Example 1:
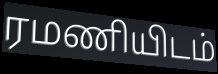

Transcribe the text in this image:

ரமணியிடம்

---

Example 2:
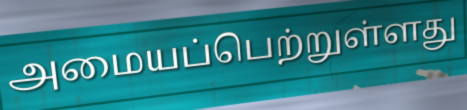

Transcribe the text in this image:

அமையப்பெற்றுள்ளது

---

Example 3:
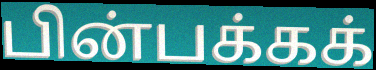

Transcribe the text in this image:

பின்பக்கக்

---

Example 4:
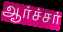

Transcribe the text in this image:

ஆர்ச்சர்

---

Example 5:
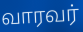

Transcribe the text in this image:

வாரவர்